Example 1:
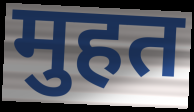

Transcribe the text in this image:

मुहत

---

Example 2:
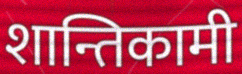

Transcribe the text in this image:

शान्तिकामी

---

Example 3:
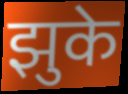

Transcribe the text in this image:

झुके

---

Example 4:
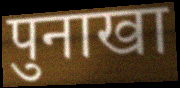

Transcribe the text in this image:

पुनाखा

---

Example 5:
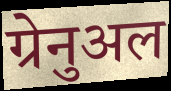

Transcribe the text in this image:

ग्रेनुअल